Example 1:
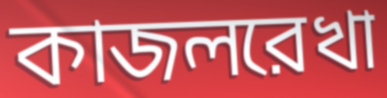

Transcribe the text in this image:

কাজলরেখা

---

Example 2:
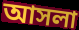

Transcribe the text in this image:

আসলা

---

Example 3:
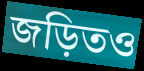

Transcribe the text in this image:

জড়িতও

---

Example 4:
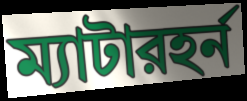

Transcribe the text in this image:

ম্যাটারহর্ন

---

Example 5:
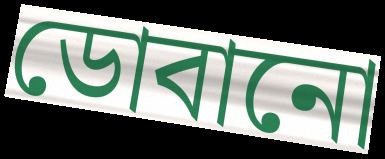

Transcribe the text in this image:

ডোবানো